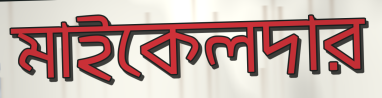
মাইকেলদার